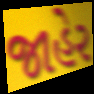
જાહેર